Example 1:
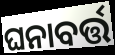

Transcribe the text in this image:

ଘନାବର୍ତ୍ତ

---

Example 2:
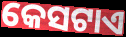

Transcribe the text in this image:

କେସଟାଏ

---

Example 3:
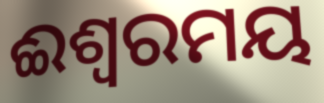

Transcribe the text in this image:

ଈଶ୍ଵରମୟ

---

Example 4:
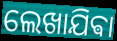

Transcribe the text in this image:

ଲେଖାଯିଵା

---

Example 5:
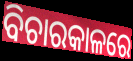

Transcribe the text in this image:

ବିଚାରକାଳରେ